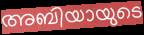
അബിയായുടെ